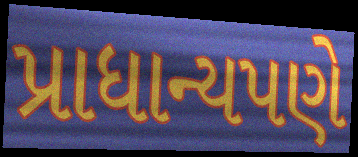
પ્રાધાન્યપણે